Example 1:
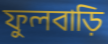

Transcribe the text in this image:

ফুলবাড়ি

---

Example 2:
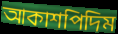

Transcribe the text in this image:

আকাশপিদিম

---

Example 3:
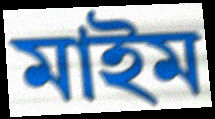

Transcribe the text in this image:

মাইম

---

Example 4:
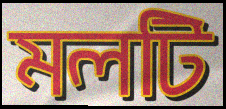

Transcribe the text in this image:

মলটি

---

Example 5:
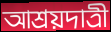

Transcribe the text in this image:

আশ্রয়দাত্রী